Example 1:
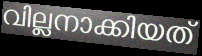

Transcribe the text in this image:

വില്ലനാക്കിയത്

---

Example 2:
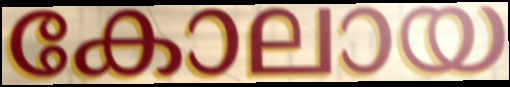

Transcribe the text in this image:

കോലായ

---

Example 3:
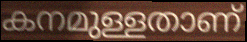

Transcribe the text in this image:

കനമുള്ളതാണ്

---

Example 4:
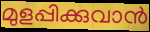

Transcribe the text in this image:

മുളപ്പിക്കുവാൻ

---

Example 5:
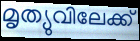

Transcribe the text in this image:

മൃത്യുവിലേക്ക്